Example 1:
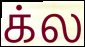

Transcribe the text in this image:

க்ல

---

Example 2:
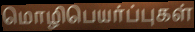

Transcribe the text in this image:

மொழிபெயர்ப்புகள்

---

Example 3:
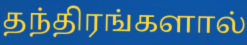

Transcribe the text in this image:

தந்திரங்களால்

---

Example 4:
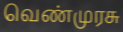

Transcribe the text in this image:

வெண்முரசு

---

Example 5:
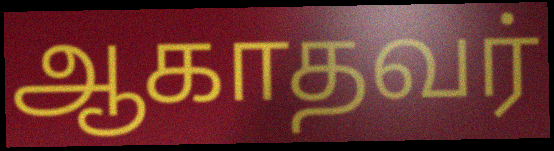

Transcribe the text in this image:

ஆகாதவர்